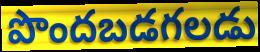
పొందబడగలడు